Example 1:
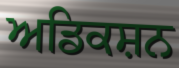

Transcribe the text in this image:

ਅਡਿਕਸ਼ਨ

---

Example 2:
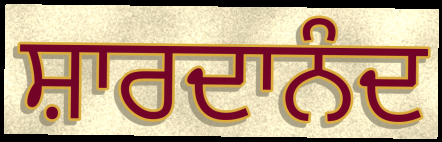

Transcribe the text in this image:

ਸ਼ਾਰਦਾਨੰਦ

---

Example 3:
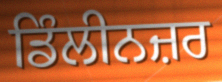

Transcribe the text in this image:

ਡਿੰਲੀਨਜ਼ਰ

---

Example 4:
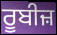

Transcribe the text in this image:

ਰੂਬੀਜ਼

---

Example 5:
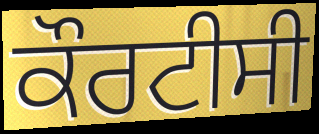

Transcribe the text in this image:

ਕੌਰਟੀਸੀ